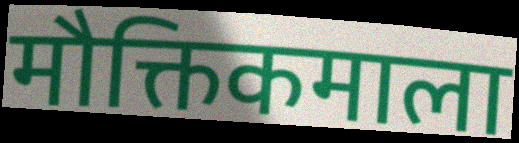
मौक्तिकमाला